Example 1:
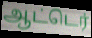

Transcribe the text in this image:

ஆட்டெர்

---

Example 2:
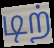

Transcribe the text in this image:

டிற்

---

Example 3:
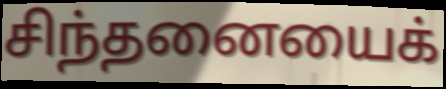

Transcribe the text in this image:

சிந்தனையைக்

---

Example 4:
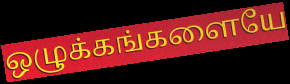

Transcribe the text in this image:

ஒழுக்கங்களையே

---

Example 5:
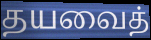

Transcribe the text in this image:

தயவைத்